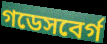
গডেসবের্গ